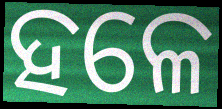
ହଳେ